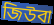
জিউবা